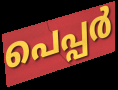
പെപ്പർ